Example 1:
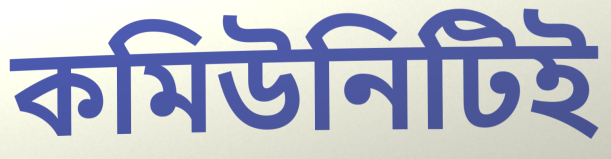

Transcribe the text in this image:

কমিউনিটিই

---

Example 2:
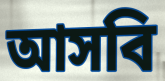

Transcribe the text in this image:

আসবি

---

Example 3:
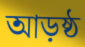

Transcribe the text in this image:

আড়ষ্ঠ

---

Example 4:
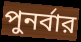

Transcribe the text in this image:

পুনর্বার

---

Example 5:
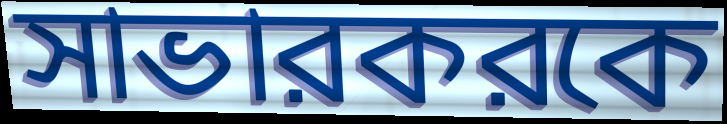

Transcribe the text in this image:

সাভারকরকে